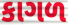
કાગળ